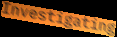
Investigating